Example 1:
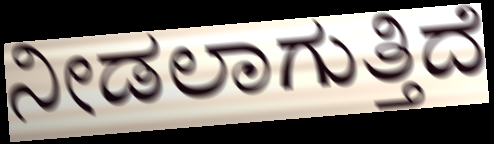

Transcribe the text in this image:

ನೀಡಲಾಗುತ್ತಿದೆ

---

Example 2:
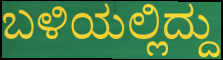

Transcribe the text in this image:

ಬಳಿಯಲ್ಲಿದ್ದು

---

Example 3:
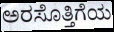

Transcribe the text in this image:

ಅರಸೊತ್ತಿಗೆಯ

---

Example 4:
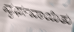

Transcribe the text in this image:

ವ್ಯರ್ಥವಾಯಿತು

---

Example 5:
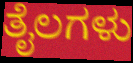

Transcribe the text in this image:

ತೈಲಗಳು